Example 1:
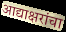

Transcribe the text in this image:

आद्याक्षरांचा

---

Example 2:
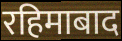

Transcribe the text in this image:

रहिमाबाद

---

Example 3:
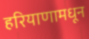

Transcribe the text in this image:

हरियाणामधून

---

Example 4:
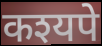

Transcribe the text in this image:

कश्यपे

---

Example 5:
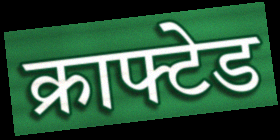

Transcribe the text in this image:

क्राफ्टेड